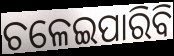
ଚଳେଇପାରିବି